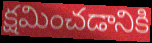
క్షమించడానికి